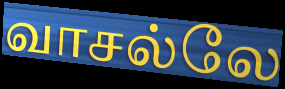
வாசல்லே